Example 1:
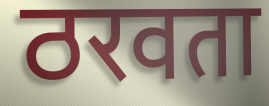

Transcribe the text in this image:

ठरवता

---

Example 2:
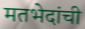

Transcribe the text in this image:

मतभेदांची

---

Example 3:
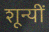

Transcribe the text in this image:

शून्यीं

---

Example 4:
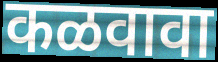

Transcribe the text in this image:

कळवावा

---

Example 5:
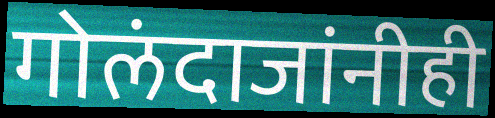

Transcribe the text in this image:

गोलंदाजांनीही